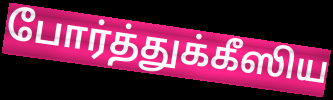
போர்த்துக்கீஸிய